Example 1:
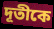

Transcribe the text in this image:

দূতীকে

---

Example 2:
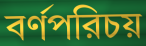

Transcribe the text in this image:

বর্ণপরিচয়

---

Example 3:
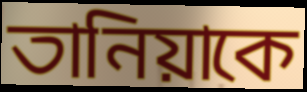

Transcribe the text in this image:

তানিয়াকে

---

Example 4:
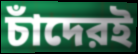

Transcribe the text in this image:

চাঁদেরই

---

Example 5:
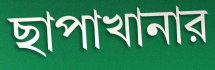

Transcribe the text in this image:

ছাপাখানার